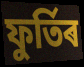
ফুৰ্তিৰ